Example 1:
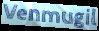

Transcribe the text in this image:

Venmugil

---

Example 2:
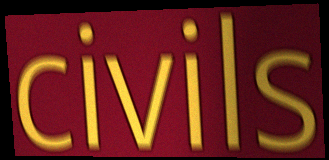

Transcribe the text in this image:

civils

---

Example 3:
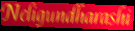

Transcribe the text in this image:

Neligundharashi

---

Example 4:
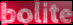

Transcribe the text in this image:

bolite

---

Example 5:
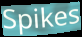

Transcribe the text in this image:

Spikes